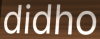
didho